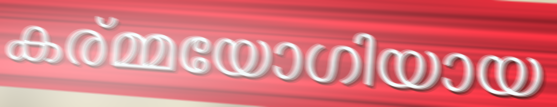
കര്മ്മയോഗിയായ